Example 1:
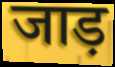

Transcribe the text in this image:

जाड़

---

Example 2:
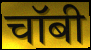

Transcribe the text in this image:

चॉबी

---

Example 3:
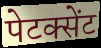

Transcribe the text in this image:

पेटक्सेंट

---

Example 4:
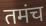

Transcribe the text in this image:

तमंच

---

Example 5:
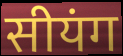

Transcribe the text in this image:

सीयंग